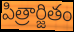
పిత్రార్జితం